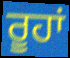
ਰੂਹਾਂ